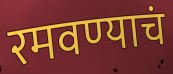
रमवण्याचं